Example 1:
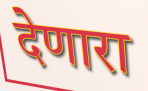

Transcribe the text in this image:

देणारा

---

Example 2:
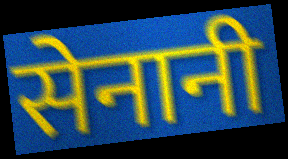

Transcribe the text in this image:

सेनानी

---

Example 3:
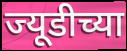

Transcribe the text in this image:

ज्यूडीच्या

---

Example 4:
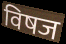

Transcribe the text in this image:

विषज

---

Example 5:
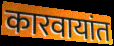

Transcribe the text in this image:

कारवायांत